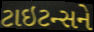
ટાઇટન્સને